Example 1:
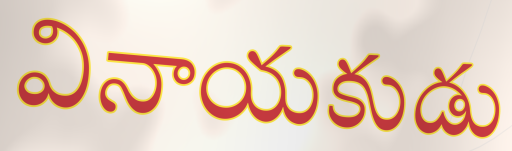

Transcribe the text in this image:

వినాయకుడు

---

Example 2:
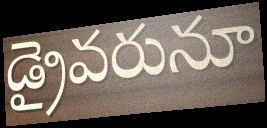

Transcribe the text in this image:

డ్రైవరునూ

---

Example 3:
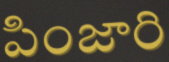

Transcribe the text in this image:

పింజారి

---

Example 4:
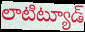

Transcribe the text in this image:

లాటిట్యూడ్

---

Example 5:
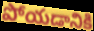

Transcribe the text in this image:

పోయడానికి